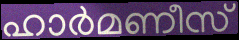
ഹാർമണീസ്